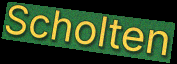
Scholten